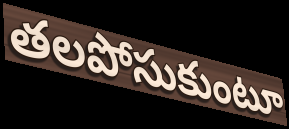
తలపోసుకుంటూ